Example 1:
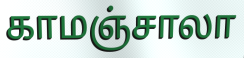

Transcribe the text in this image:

காமஞ்சாலா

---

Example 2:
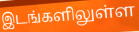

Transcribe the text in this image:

இடங்களிலுள்ள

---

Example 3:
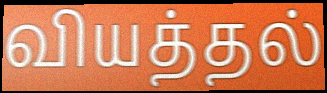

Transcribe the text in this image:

வியத்தல்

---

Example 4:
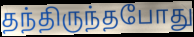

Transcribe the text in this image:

தந்திருந்தபோது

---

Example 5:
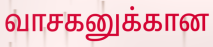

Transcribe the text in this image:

வாசகனுக்கான